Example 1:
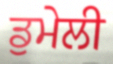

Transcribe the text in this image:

ਡੁਮੇਲੀ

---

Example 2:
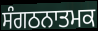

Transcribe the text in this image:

ਸੰਗਠਨਾਤਮਕ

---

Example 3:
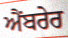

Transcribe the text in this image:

ਐਂਬਰੇਰ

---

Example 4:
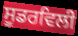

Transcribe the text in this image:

ਸੂਡਰਵਿਲੀ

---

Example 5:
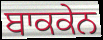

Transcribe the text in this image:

ਬਾਕਕੇਨ